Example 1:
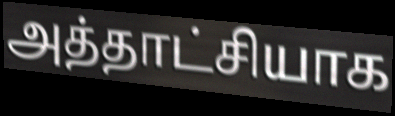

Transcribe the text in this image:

அத்தாட்சியாக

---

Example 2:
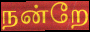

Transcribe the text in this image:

நன்றே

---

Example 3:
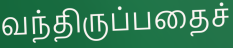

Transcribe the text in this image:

வந்திருப்பதைச்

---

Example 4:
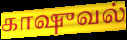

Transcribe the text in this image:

காஷுவல்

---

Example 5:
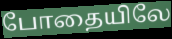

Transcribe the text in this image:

போதையிலே